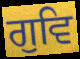
ਗੁਵਿ